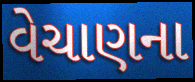
વેચાણના